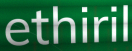
ethiril